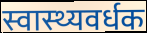
स्वास्थ्यवर्धक